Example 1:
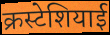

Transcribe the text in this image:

क्रस्टेशियाई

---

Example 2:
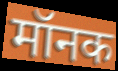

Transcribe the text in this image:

मॉनक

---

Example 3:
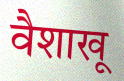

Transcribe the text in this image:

वैशाखू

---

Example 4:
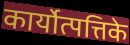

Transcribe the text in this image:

कार्योत्पत्तिके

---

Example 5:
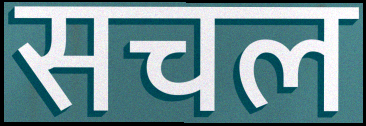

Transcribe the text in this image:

सचल